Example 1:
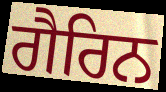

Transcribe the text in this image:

ਗੈਰਿਨ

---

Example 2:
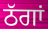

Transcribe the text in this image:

ਠੱਗਾਂ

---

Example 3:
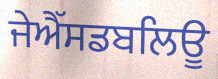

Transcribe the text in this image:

ਜੇਐੱਸਡਬਲਿਊ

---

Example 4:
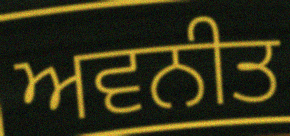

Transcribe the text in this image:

ਅਵਨੀਤ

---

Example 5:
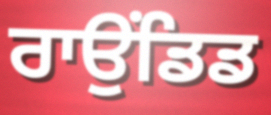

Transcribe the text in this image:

ਰਾਉਂਡਿਡ